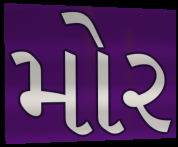
મોર